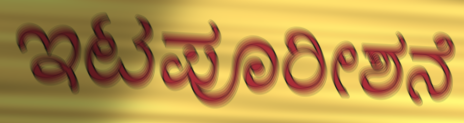
ಇಟಪೂರೀಶನೆ